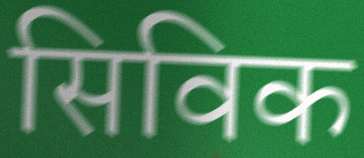
सिविक